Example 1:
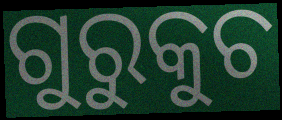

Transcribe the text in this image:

ଗୁରୁକୁଚ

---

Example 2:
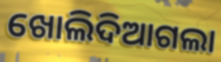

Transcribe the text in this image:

ଖୋଲିଦିଆଗଲା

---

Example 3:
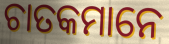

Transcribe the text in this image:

ଚାତକମାନେ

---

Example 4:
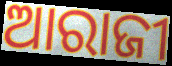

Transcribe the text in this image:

ଆରାଜୀ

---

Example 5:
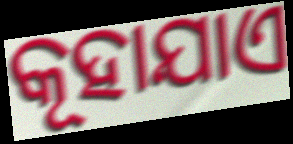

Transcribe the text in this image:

କୂହାଯାଏ